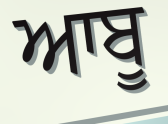
ਆਬੂ